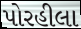
પોરહીલા